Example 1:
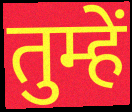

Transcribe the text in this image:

तुम्‍हें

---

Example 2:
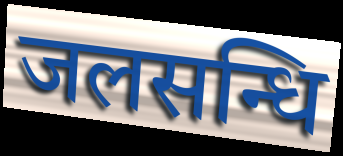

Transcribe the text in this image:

जलसन्धि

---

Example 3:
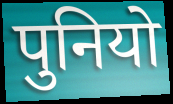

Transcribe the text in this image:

पुनियो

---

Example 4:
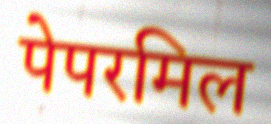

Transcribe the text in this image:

पेपरमिल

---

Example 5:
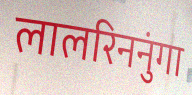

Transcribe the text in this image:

लालरिननुंगा